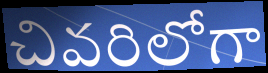
చివరిలోగా